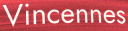
Vincennes